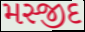
મસ્જીદ